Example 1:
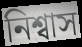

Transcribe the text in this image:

নিশ্বাস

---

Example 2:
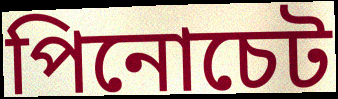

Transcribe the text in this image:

পিনোচেট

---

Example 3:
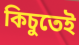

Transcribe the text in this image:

কিচুতেই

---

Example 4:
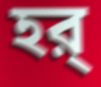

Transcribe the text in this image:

হর্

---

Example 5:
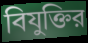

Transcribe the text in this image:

বিযুক্তির